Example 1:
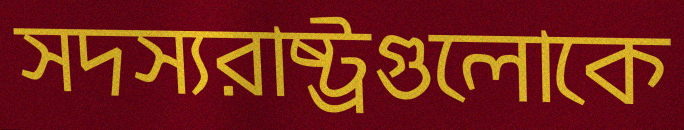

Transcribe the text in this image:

সদস্যরাষ্ট্রগুলোকে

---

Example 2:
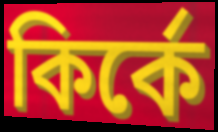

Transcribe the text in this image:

কির্কে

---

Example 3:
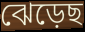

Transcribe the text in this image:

ঝেড়েছ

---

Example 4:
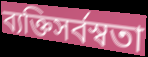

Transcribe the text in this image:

ব্যক্তিসর্বস্বতা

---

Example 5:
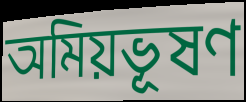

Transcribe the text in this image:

অমিয়ভূষণ